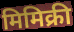
मिमिक्री